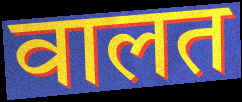
वालत